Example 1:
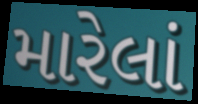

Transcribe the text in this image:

મારેલાં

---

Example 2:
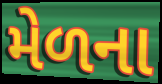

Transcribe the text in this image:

મેળના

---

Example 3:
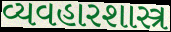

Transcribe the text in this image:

વ્યવહારશાસ્ત્ર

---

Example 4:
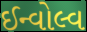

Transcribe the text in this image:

ઈન્વોલ્વ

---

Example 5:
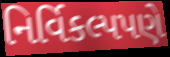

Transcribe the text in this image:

નિર્વિકલ્પપણે